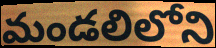
మండలిలోని